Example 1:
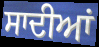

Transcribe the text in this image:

ਸਾਦੀਆਂ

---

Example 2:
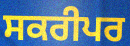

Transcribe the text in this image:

ਸਕਰੀਪਰ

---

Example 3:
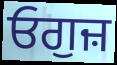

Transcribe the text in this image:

ਓਗੁਜ਼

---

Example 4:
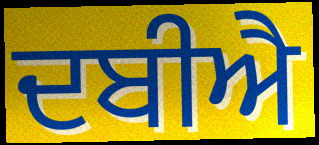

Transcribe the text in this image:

ਦਬੀਐ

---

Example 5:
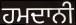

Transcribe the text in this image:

ਹਮਦਾਨੀ